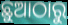
ଛୁଆଠାରୁ